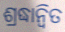
ଶ୍ରଦ୍ଧାନ୍ୱିତ